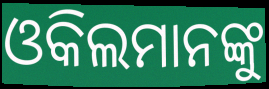
ଓକିଲମାନଙ୍କୁ